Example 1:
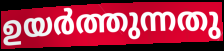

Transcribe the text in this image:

ഉയർത്തുന്നതു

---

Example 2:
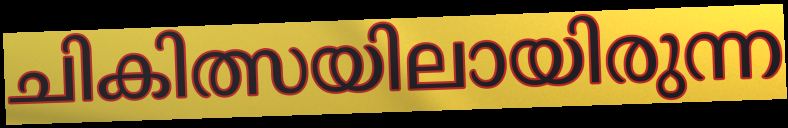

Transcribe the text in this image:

ചികിത്സയിലായിരുന്ന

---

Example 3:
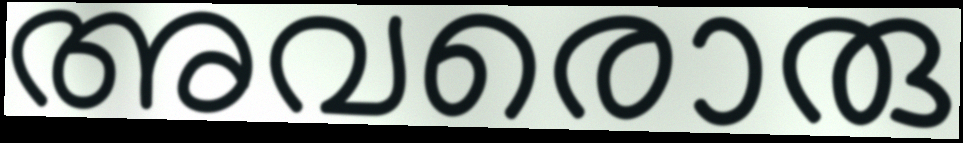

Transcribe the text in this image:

അവരൊരു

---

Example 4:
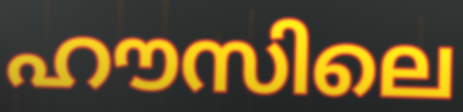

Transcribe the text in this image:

ഹൗസിലെ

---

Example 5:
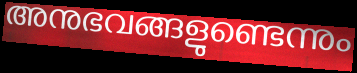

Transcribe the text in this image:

അനുഭവങ്ങളുണ്ടെന്നും